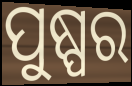
ପୁଷ୍ପର